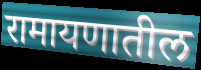
रामायणातील